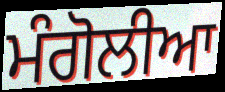
ਮੰਗੋਲੀਆ